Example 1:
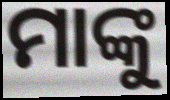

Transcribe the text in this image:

ମାଙ୍କୁ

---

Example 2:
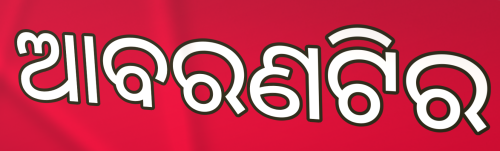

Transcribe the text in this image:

ଆବରଣଟିର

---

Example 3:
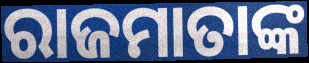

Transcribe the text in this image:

ରାଜମାତାଙ୍କ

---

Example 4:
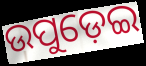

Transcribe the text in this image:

ଉପୁଡ଼େଇ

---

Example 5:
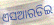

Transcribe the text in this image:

ଏସଆରଡିଇ